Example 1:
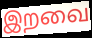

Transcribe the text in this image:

இறவை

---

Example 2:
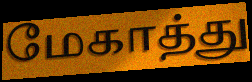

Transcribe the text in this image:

மேகாத்து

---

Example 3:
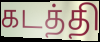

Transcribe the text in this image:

கடத்தி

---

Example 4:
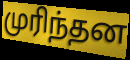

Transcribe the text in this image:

முரிந்தன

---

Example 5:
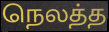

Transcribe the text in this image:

நெலத்த